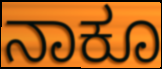
ನಾಕೂ